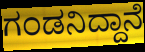
ಗಂಡನಿದ್ದಾನೆ